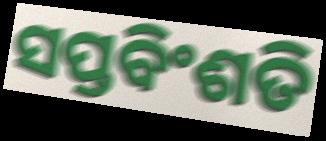
ସପ୍ତବିଂଶତି